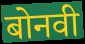
बोनवी